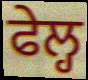
ਫੇਲ੍ਹ